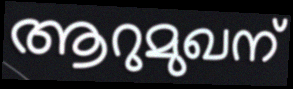
ആറുമുഖന്